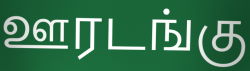
ஊரடங்கு